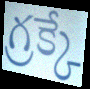
గ్రక్కే